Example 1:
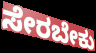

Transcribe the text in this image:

ಸೇರಬೇಕು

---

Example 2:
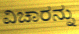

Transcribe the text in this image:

ವಿಚಾರನ್ನು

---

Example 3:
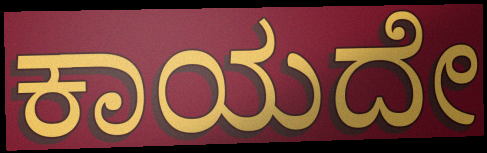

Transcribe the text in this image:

ಕಾಯದೇ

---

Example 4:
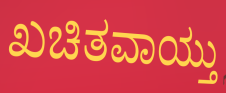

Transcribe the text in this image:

ಖಚಿತವಾಯ್ತು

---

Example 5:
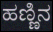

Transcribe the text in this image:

ಹಣ್ಣಿನ